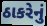
ઠાકરેનું